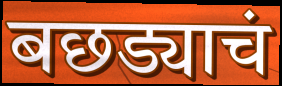
बछड्याचं